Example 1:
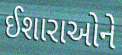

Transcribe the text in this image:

ઈશારાઓને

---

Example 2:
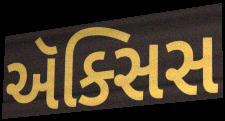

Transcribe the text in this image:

ઍક્સિસ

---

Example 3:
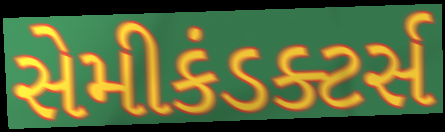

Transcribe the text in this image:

સેમીકંડક્ટર્સ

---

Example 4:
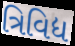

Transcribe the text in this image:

ત્રિવિદ્ય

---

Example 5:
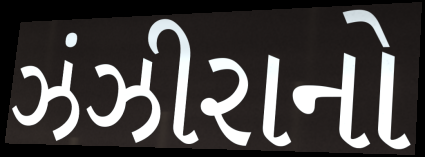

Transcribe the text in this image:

ઝંઝીરાનો